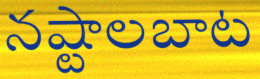
నష్టాలబాట